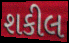
શકીલ